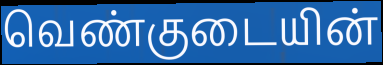
வெண்குடையின்